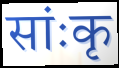
सांःकृ